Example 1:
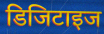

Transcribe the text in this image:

डिजिटाइज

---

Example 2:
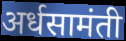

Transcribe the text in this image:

अर्धसामंती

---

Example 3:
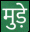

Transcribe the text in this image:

मुड़े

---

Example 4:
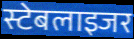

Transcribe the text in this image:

स्टेबलाइजर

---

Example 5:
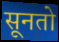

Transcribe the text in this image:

सूनतो